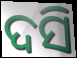
ଦସି